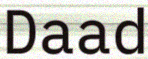
Daad